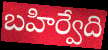
బహిర్వేది